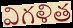
విగళిత